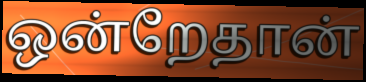
ஒன்றேதான்